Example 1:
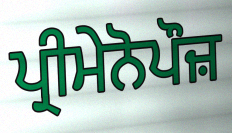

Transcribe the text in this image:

ਪ੍ਰੀਮੇਨੋਪੌਜ਼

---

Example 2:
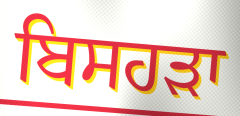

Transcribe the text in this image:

ਬਿਸਹੜਾ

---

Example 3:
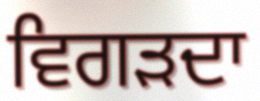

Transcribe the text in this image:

ਵਿਗੜਦਾ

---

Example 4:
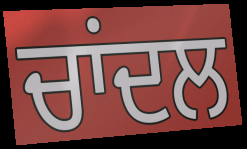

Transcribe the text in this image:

ਚਾਂਦਲ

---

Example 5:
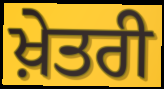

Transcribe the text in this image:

ਖ਼ੇਤਰੀ